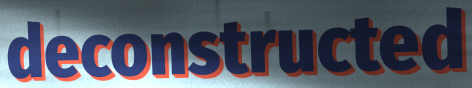
deconstructed